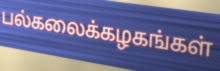
பல்கலைக்கழகங்கள்